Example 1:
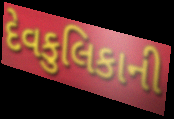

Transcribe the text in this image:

દેવકુલિકાની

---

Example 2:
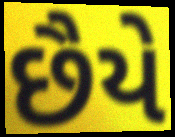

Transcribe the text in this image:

છૈયે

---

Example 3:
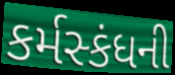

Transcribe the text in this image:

કર્મસ્કંધની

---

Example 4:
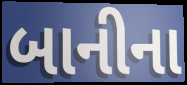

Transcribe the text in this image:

બાનીના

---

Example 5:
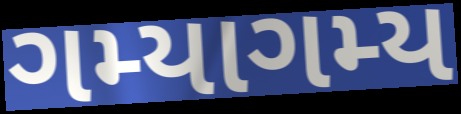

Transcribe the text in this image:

ગમ્યાગમ્ય